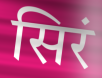
सिरं